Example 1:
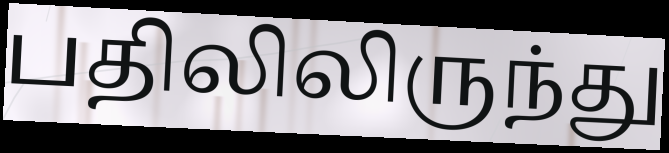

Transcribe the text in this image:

பதிலிலிருந்து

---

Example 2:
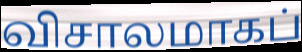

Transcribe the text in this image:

விசாலமாகப்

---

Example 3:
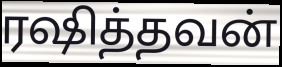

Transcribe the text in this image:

ரஷித்தவன்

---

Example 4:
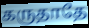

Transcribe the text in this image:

கருதாதே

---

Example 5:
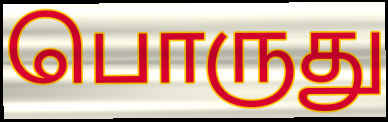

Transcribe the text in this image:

பொருது